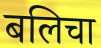
बलिचा